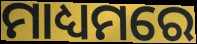
ମାଧ୍ୟମରେ